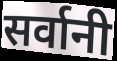
सर्वानी